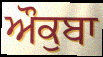
ਔਕੁਬਾ